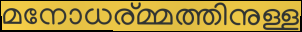
മനോധര്മ്മത്തിനുള്ള